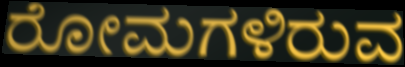
ರೋಮಗಳಿರುವ